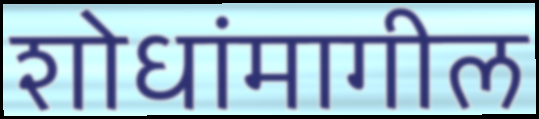
शोधांमागील